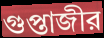
গুপ্তাজীর